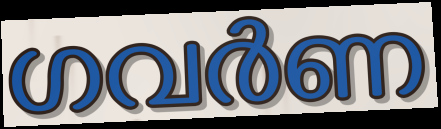
ഗവർണ